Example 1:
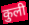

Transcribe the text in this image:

कुली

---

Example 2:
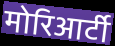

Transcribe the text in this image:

मोरिआर्टी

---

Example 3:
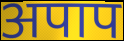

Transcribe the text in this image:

अपाप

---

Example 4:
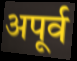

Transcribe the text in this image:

अपूर्व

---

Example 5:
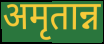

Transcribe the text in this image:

अमृतान्न